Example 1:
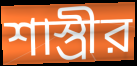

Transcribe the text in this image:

শাস্ত্রীর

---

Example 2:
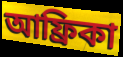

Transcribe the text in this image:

আফ্রিকা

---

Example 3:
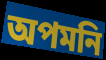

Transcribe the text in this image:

অপমনি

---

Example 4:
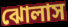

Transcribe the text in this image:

ঝোলাস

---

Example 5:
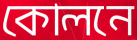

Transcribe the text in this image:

কোলনে